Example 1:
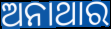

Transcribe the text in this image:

ଅନାଥାର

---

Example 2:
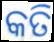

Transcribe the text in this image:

କତି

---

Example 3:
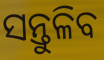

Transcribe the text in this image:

ସନ୍ତୁଳିବ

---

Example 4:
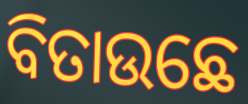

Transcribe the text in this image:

ବିତାଉଛେ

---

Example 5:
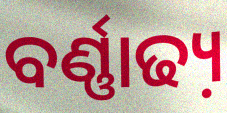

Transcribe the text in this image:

ବର୍ଣ୍ଣାଢ୍ୟ଼